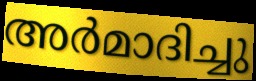
അർമാദിച്ചു